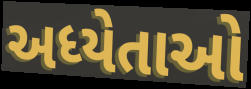
અધ્યેતાઓ